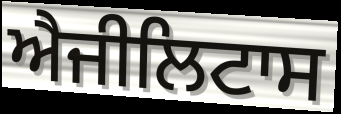
ਐਜੀਲਿਟਾਸ